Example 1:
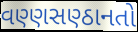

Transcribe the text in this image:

વણ્ણસણ્ઠાનતો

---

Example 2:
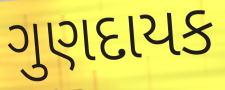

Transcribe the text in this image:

ગુણદાયક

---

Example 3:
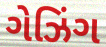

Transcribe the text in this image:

ગેઝિંગ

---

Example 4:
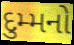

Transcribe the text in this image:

દુમ્મનો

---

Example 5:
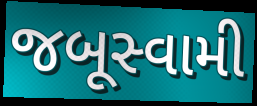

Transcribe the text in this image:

જબૂસ્વામી